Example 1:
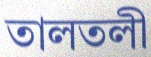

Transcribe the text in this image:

তালতলী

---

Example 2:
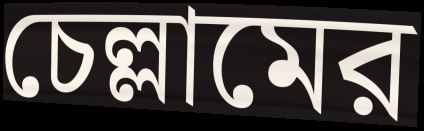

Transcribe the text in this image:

চেল্লামের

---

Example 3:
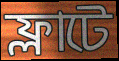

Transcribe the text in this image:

ফ্লাটে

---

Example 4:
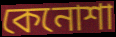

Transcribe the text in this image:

কেনোশা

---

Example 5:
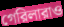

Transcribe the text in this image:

গেরিলারাও